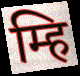
म्हि